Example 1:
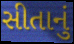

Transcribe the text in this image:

સીતાનું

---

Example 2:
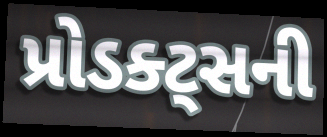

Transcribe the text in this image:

પ્રોડક્ટ્સની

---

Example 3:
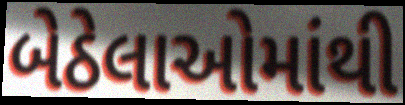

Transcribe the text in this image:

બેઠેલાઓમાંથી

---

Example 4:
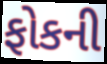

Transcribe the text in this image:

ફોકની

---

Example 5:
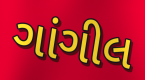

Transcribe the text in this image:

ગાંગીલ